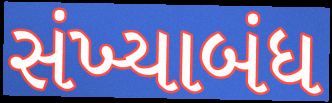
સંખ્યાબંધ